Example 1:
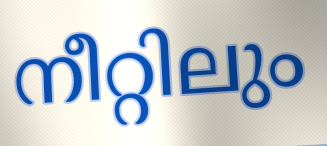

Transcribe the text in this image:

നീറ്റിലും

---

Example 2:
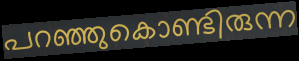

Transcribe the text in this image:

പറഞ്ഞുകൊണ്ടിരുന്ന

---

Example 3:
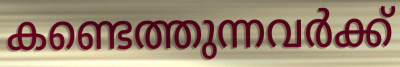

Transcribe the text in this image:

കണ്ടെത്തുന്നവർക്ക്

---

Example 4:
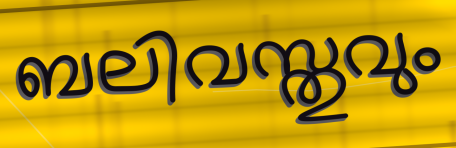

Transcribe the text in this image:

ബലിവസ്തുവും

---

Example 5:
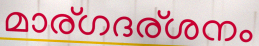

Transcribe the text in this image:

മാര്ഗദര്ശനം